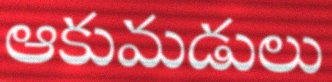
ఆకుమడులు